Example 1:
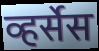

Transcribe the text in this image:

व्हर्सेस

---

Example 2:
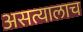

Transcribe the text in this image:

असत्यालाच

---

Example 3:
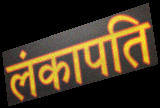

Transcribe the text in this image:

लंकापति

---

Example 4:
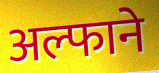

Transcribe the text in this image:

अल्फाने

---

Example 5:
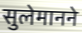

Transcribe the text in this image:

सुलेमानने